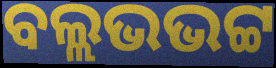
ବଲ୍ଲଭଭଟ୍ଟ